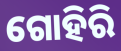
ଗୋହିରି